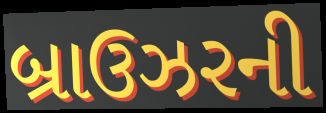
બ્રાઉઝરની